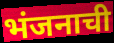
भंजनाची